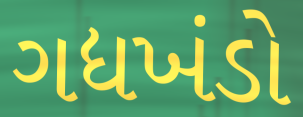
ગદ્યખંડો